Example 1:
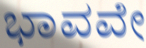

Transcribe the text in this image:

ಭಾವವೇ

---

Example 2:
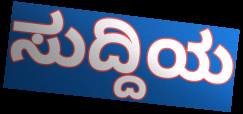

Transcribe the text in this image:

ಸುದ್ದಿಯ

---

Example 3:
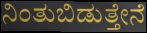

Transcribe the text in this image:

ನಿಂತುಬಿಡುತ್ತೇನೆ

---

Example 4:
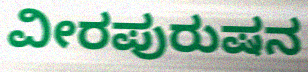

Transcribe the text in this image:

ವೀರಪುರುಷನ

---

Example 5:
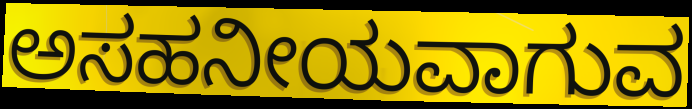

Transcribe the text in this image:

ಅಸಹನೀಯವಾಗುವ